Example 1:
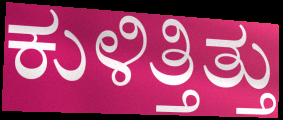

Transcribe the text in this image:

ಕುಳಿತ್ತಿತ್ತು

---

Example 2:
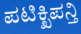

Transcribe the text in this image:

ಪಟಿಕ್ಖಿಪನ್ತಿ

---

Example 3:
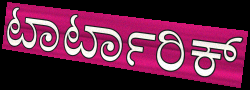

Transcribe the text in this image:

ಟಾರ್ಟಾರಿಕ್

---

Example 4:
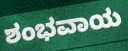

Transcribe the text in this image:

ಶಂಭವಾಯ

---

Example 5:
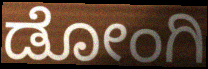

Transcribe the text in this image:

ಡೋಂಗಿ